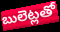
బులెట్లతో